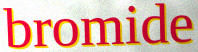
bromide